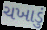
ચખાડું